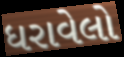
ધરાવેલો